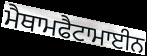
ਮੈਥਾਮਫੈਟਾਮਾਈਨ